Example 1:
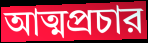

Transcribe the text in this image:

আত্মপ্রচার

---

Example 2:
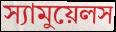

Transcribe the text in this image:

স্যামুয়েলস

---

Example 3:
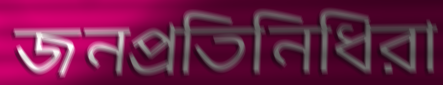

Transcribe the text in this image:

জনপ্রতিনিধিরা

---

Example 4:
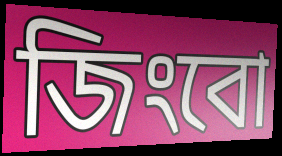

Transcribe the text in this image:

জিংবো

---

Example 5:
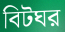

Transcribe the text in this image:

বিটঘর